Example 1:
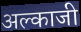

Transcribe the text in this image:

अल्काजी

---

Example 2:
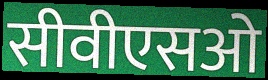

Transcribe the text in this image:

सीवीएसओ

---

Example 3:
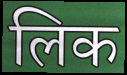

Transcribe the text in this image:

लिक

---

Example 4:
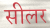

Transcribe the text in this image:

सीलर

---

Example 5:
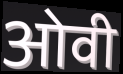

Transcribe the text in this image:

ओवी